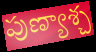
పుణ్యాశ్చ